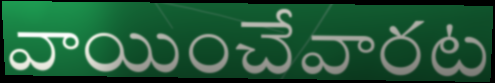
వాయించేవారట